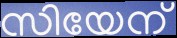
സിയേന്